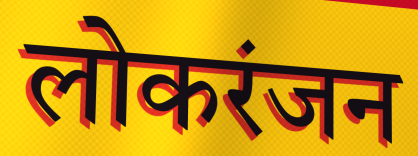
लोकरंजन